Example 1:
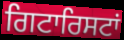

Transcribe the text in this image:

ਗਿਟਾਰਿਸਟਾਂ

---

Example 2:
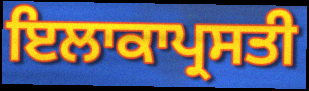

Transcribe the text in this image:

ਇਲਾਕਾਪ੍ਰਸਤੀ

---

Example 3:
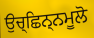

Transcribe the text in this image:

ਉਚ੍ਛਿਨ੍ਨਮੂਲੋ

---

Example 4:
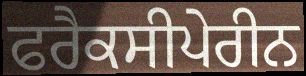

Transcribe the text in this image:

ਫਰੈਕਸੀਪੇਰੀਨ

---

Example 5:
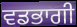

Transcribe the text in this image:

ਵਡਭਾਗੀ